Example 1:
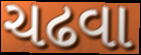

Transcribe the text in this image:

ચઢવા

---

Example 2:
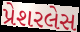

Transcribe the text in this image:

પ્રેશરલેસ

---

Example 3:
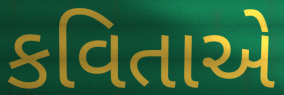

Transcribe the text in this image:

કવિતાએ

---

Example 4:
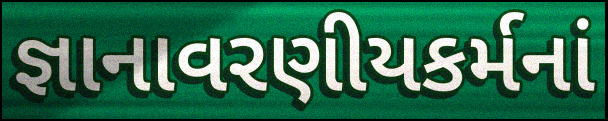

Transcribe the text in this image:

જ્ઞાનાવરણીયકર્મનાં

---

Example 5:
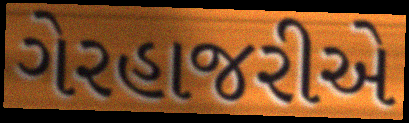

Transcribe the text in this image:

ગેરહાજરીએ